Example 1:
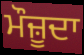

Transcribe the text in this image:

ਮੌਜ਼ੂਦਾ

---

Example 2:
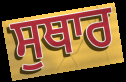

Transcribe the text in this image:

ਸੁਥਾਰ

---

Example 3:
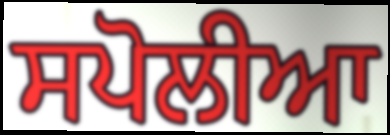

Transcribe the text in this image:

ਸਪੋਲੀਆ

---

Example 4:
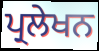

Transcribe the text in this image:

ਪ੍ਰਲੇਖਨ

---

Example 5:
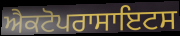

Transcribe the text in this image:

ਐਕਟੋਪਰਾਸਾਇਟਸ